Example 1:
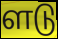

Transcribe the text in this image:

ளடு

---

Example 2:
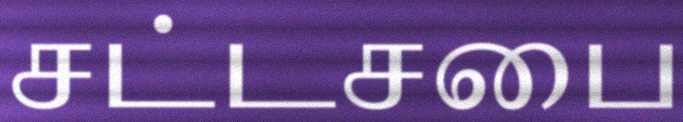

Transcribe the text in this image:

சட்டசபை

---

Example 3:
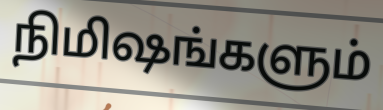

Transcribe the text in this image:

நிமிஷங்களும்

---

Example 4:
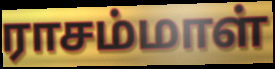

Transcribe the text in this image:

ராசம்மாள்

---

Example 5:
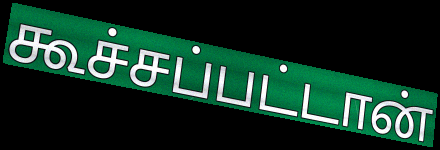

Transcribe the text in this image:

கூச்சப்பட்டான்